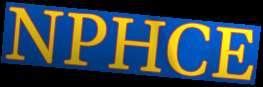
NPHCE